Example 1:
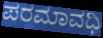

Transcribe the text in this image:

ಪರಮಾವಧಿ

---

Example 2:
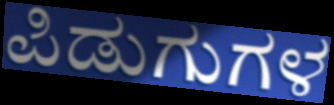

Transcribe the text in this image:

ಪಿಡುಗುಗಳ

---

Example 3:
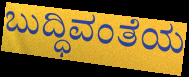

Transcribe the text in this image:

ಬುದ್ಧಿವಂತೆಯ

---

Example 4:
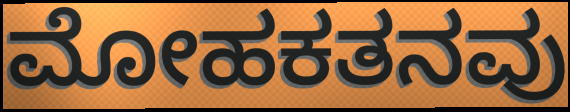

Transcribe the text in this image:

ಮೋಹಕತನವು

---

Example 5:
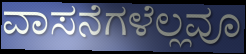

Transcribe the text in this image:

ವಾಸನೆಗಳೆಲ್ಲವೂ